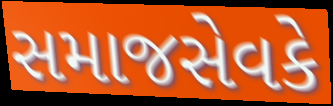
સમાજસેવકે